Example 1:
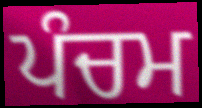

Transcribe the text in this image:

ਪੰਚਮ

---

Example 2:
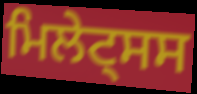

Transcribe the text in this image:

ਮਿਲੇਟ੍ਸਸ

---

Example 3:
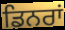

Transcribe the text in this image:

ਡਿਨਰਾਂ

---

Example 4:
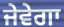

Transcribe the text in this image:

ਜੇਵੇਗਾ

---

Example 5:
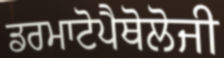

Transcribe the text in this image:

ਡਰਮਾਟੋਪੈਥੋਲੋਜੀ